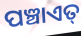
ପଞ୍ଚାଏତ୍